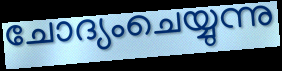
ചോദ്യംചെയ്യുന്നു